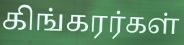
கிங்கரர்கள்